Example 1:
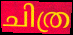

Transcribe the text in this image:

ചിത്ര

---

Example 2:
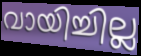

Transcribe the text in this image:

വായിച്ചില്ല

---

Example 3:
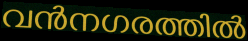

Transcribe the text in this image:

വൻനഗരത്തിൽ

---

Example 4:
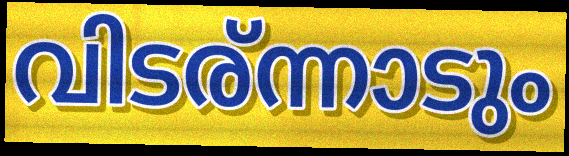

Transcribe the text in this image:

വിടര്ന്നാടും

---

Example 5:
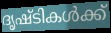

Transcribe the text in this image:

ദൃഷ്ടികൾക്ക്